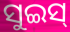
ସୁଇସ୍